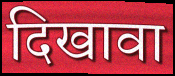
दिखावा